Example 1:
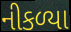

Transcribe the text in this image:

નીકળ્યા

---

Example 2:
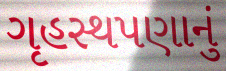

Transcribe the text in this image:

ગૃહસ્થપણાનું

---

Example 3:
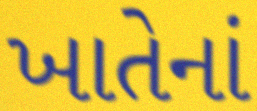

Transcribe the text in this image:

ખાતેનાં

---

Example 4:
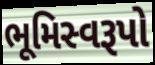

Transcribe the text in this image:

ભૂમિસ્વરૂપો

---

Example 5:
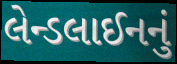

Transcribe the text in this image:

લેન્ડલાઈનનું